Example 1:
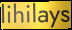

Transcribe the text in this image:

lihilays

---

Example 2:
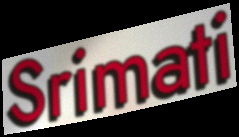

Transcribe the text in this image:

Srimati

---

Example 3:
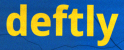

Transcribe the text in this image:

deftly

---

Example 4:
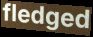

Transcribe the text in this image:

fledged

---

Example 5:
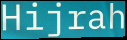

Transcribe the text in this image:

Hijrah